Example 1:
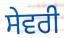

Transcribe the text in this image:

ਸੇਵਰੀ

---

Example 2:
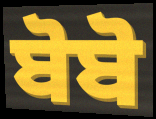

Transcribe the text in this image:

ਬੋਬੋ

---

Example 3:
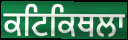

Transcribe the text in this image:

ਕਟਿਕਿਥਲਾ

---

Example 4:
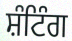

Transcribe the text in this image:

ਸ਼ੰਟਿੰਗ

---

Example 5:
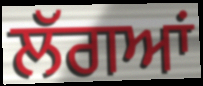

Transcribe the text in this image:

ਲੱਗਆਂ